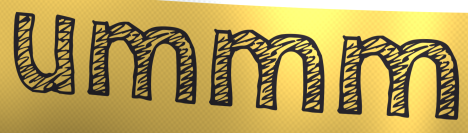
ummm